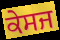
ਕੇਸਜ